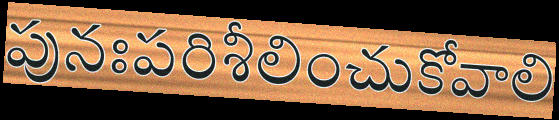
పునఃపరిశీలించుకోవాలి